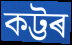
কট্টৰ